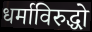
धर्माविरुद्धो